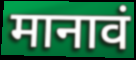
मानावं